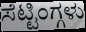
ಸೆಟ್ಟಿಂಗ್ಗಳು